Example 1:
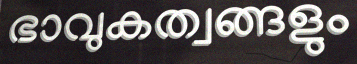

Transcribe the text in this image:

ഭാവുകത്വങ്ങളും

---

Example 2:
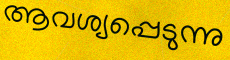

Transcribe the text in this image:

ആവശ്യപ്പെടുന്നു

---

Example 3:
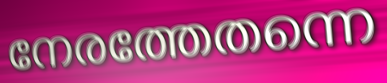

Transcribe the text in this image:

നേരത്തേതന്നെ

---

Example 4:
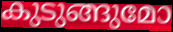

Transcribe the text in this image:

കുടുങ്ങുമോ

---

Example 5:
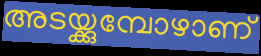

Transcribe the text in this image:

അടയ്ക്കുമ്പോഴാണ്